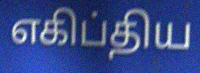
எகிப்திய